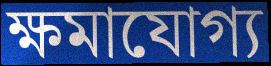
ক্ষমাযোগ্য